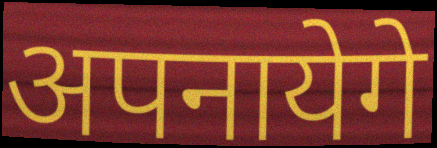
अपनायेगे